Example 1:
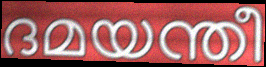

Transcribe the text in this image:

ദമയന്തീ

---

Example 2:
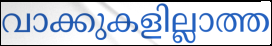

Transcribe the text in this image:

വാക്കുകളില്ലാത്ത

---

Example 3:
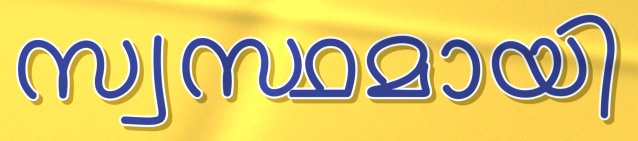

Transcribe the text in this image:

സ്വസ്ഥമായി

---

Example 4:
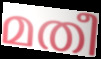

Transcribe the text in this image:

മതീ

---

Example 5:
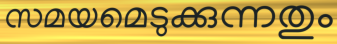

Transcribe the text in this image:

സമയമെടുക്കുന്നതും